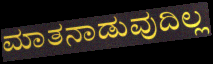
ಮಾತನಾಡುವುದಿಲ್ಲ